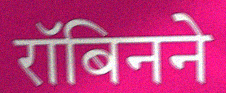
रॉबिनने